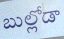
బుల్లోడా